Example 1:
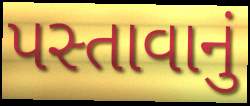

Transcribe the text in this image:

પસ્તાવાનું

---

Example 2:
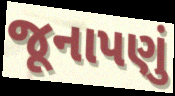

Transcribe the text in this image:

જૂનાપણું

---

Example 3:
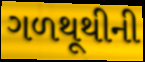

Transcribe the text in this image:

ગળથૂથીની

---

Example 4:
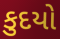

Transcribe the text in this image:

કુદયો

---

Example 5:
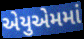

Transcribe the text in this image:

એયુએમમાં